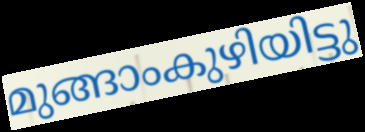
മുങ്ങാംകുഴിയിട്ടു